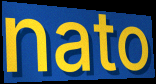
nato